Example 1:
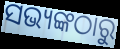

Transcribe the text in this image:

ସଭ୍ୟଙ୍କଠାରୁ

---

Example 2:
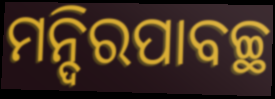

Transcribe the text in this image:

ମନ୍ଦିରପାବଚ୍ଛ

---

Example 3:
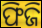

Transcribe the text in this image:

ଫିଜି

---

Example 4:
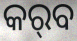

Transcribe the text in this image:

କର୍‌ବ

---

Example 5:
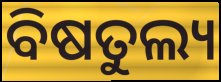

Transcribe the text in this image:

ବିଷତୁଲ୍ୟ